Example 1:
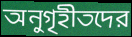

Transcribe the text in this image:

অনুগৃহীতদের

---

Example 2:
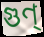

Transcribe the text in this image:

গুণ্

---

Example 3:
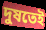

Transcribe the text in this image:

দুষতেই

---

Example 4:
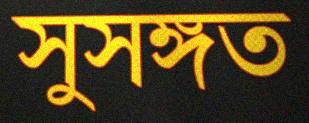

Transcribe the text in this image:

সুসঙ্গত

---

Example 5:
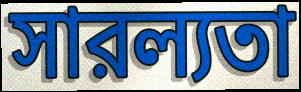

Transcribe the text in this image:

সারল্যতা